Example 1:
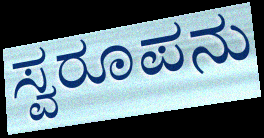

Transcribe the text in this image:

ಸ್ವರೂಪನು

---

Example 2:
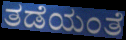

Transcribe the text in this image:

ತಡೆಯಂತೆ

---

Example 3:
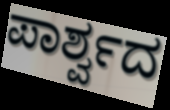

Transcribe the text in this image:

ಪಾರ್ಶ್ವದ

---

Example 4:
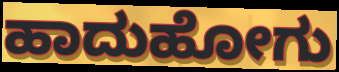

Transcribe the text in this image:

ಹಾದುಹೋಗು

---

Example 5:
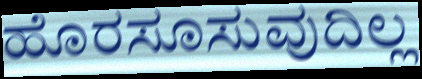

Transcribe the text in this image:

ಹೊರಸೂಸುವುದಿಲ್ಲ